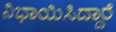
ನಿಭಾಯಿಸಿದ್ದಾರೆ